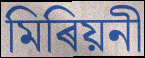
মিৰিয়নী